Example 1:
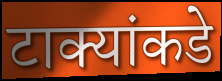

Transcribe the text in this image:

टाक्यांकडे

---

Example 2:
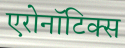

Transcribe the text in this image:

एरोनॉटिक्स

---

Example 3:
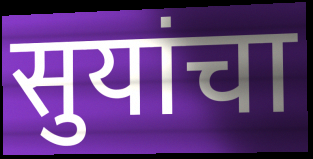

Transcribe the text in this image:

सुयांचा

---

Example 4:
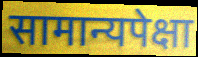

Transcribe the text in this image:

सामान्यपेक्षा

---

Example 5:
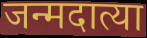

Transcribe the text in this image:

जन्मदात्या